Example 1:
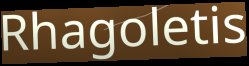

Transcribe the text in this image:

Rhagoletis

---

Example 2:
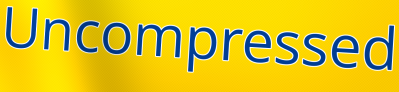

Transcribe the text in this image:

Uncompressed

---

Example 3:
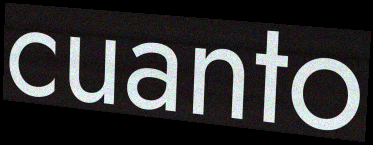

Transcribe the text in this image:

cuanto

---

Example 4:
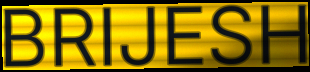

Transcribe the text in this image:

BRIJESH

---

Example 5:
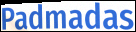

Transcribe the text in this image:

Padmadas